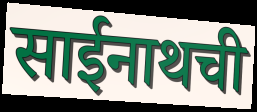
साईनाथची